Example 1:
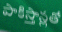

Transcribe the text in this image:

పాకిస్తాన్లతో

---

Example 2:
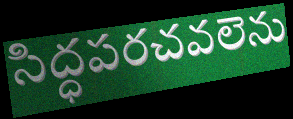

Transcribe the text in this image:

సిద్ధపరచవలెను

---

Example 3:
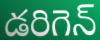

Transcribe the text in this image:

డరిగెన్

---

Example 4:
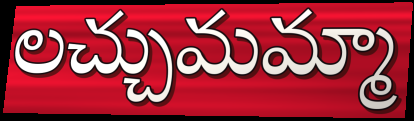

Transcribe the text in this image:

లచ్చుమమ్మా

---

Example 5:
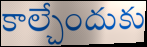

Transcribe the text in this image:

కాల్చేందుకు